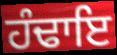
ਹੰਢਾਇ